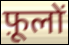
फ़ूलों